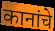
कानांचे